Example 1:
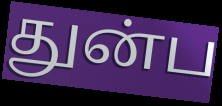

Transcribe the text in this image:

துன்ப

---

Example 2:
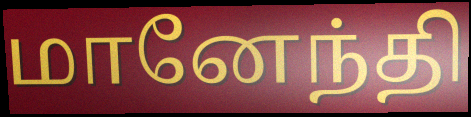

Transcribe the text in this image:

மானேந்தி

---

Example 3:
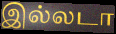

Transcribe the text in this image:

இல்லடா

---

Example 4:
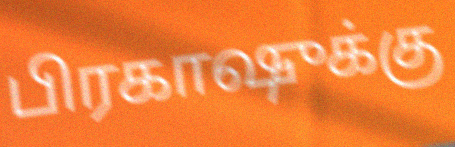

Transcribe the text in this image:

பிரகாஷுக்கு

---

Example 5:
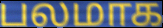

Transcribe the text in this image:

பலமாக